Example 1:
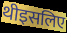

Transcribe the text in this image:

थीइसलिए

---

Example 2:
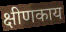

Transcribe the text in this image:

क्षीणकाय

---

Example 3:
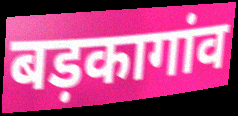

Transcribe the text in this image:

बड़कागांव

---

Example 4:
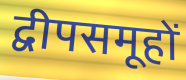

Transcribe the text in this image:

द्वीपसमूहों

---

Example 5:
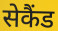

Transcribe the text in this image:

सेकैंड